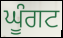
ਘੂੰਗਟ